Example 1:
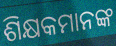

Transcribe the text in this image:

ଶିକ୍ଷକମାନଙ୍କ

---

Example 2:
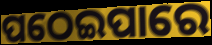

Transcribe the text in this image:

ପଠେଇପାରେ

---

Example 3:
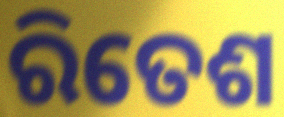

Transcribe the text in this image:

ରିତେଶ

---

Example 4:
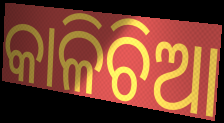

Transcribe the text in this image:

କାଳିଚିଆ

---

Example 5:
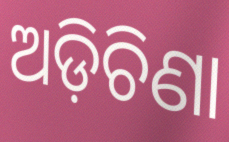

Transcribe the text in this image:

ଅଡ଼ିଚିଣା